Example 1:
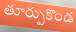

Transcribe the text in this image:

తూర్పుకొండ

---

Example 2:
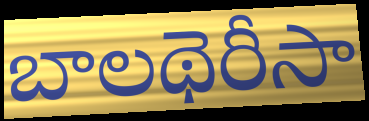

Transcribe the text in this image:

బాలథెరీసా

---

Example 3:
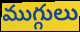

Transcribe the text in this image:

ముగ్గులు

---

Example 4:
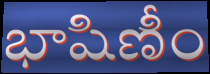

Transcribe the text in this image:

భాషిణీం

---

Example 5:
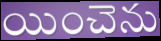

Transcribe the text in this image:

యించెను